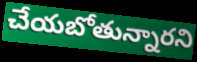
చేయబోతున్నారని